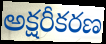
అక్షరీకరణ